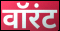
वॉरंट